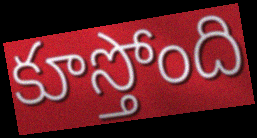
కూస్తోంది